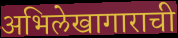
अभिलेखागाराची